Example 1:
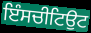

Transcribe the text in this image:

ਇੰਸਚੀਟਿਉਟ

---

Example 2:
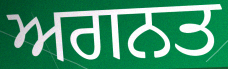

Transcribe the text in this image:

ਅਗਨਤ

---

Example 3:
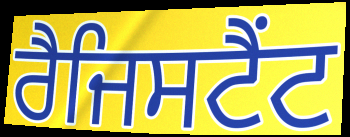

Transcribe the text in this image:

ਰੈਜਿਸਟੈਂਟ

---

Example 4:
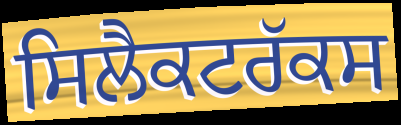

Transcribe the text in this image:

ਸਿਲੈਕਟਰੱਕਸ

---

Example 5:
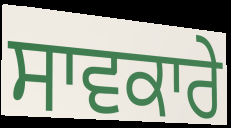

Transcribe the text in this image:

ਸਾਵਕਾਰੇ